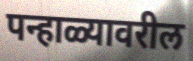
पन्हाळ्यावरील